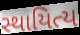
સ્થાયિત્ય